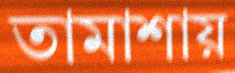
তামাশায়